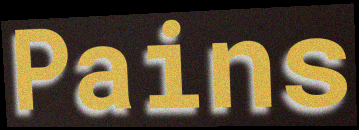
Pains